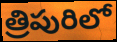
త్రిపురిలో